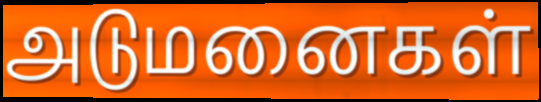
அடுமனைகள்